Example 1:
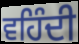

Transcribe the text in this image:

ਵਹਿੰਦੀ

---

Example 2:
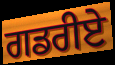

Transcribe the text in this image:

ਗਡਰੀਏ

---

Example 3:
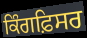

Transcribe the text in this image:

ਕਿੰਗਫ਼ਿਸਰ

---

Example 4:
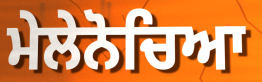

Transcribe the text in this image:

ਮੇਲੇਨੋਚਿਆ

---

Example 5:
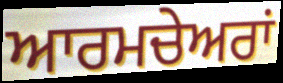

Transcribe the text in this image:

ਆਰਮਚੇਅਰਾਂ